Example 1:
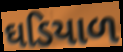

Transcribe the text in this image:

ઘડિયાળ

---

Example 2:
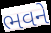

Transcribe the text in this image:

ભવને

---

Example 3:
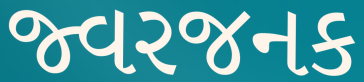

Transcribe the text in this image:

જ્વરજનક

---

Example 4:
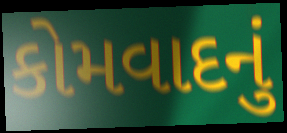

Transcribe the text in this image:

કોમવાદનું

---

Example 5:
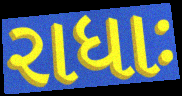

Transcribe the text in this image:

રાધાઃ